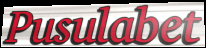
Pusulabet